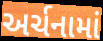
અર્ચનામાં